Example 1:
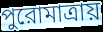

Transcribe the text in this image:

পুরোমাত্রায়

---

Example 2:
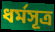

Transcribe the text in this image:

ধর্মসূত্র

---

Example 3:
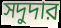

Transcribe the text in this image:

সদুদার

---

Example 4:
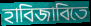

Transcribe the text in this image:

হাবিজাবিতে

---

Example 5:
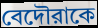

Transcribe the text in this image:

বেদৌরাকে